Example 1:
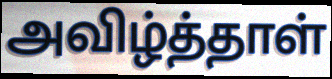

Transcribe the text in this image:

அவிழ்த்தாள்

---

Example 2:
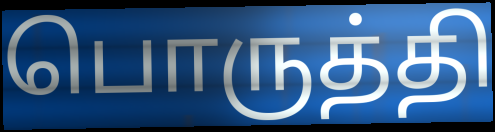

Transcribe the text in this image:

பொருத்தி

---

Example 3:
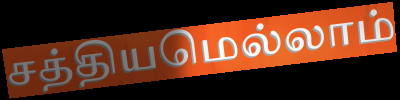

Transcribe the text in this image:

சத்தியமெல்லாம்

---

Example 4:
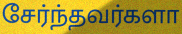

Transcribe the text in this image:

சேர்ந்தவர்களா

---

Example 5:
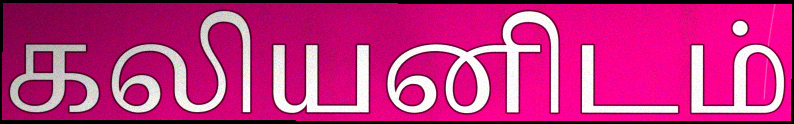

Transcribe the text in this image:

கலியனிடம்